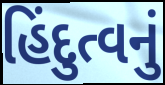
હિંદુત્વનું